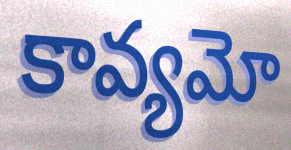
కావ్యమో